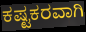
ಕಷ್ಟಕರವಾಗಿ